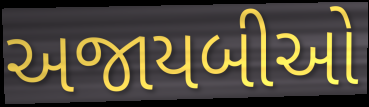
અજાયબીઓ